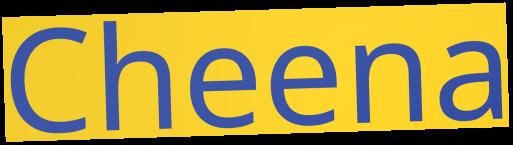
Cheena